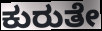
ಕುರುತೇ